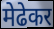
मेढेकर